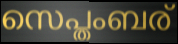
സെപ്തംബര്